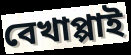
বেখাপ্পাই